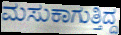
ಮಸುಕಾಗುತ್ತಿದ್ದ